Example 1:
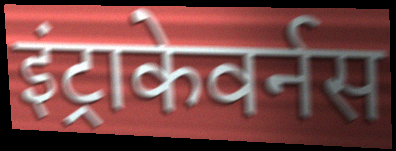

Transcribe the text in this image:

इंट्राकेवर्नस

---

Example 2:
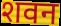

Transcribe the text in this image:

शवन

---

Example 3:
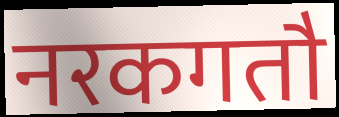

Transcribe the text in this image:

नरकगतौ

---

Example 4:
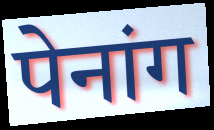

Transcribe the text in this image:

पेनांग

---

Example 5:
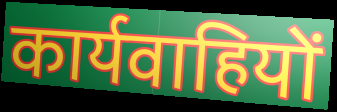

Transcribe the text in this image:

कार्यवाहियों